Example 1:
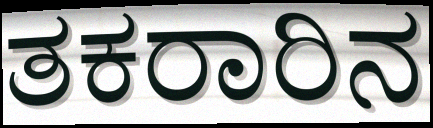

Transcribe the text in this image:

ತಕರಾರಿನ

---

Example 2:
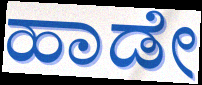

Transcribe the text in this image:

ಹಾಡೇ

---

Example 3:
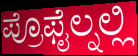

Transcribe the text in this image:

ಪ್ರೊಫೈಲ್ನಲ್ಲಿ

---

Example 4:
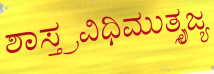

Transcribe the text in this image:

ಶಾಸ್ತ್ರವಿಧಿಮುತ್ಸೃಜ್ಯ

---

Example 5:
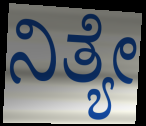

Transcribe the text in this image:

ನಿತ್ಯೇ